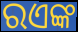
ରଏଙ୍କ